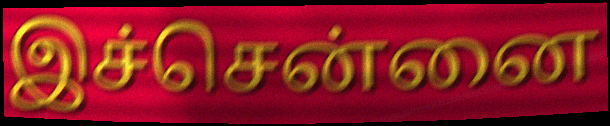
இச்சென்னை